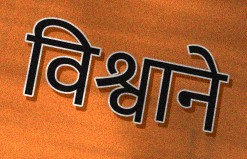
विश्वाने